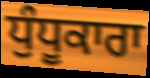
ਧੁੰਧੂਕਾਰਾ